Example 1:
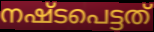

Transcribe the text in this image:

നഷ്ടപെട്ടത്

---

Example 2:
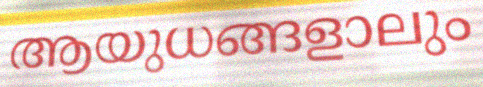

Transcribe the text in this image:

ആയുധങ്ങളാലും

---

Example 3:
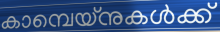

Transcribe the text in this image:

കാമ്പെയ്നുകൾക്ക്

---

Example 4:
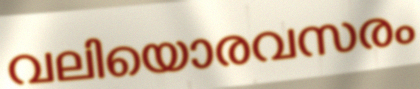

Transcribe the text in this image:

വലിയൊരവസരം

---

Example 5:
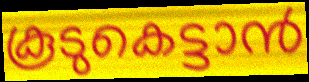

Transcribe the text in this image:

കൂടുകെട്ടാൻ